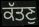
ਕੱਤਣੁ